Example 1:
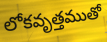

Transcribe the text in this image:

లోకవృత్తముతో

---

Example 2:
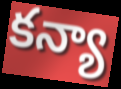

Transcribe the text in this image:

కన్యా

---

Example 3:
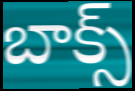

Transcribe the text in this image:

బాక్స్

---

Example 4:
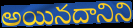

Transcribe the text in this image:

అయినదానిని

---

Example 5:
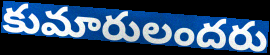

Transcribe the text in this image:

కుమారులందరు